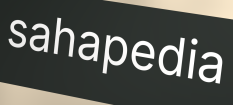
sahapedia